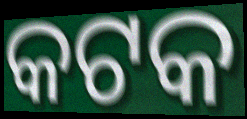
କଟକ